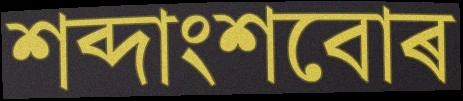
শব্দাংশবোৰ